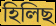
হিলিছ